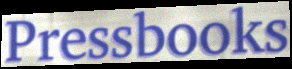
Pressbooks